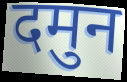
दमुन